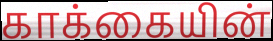
காக்கையின்